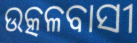
ଉତ୍କଳବାସୀ